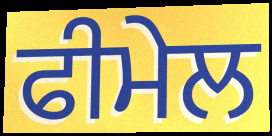
ਫੀਮੇਲ